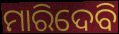
ମାରିଦେବି